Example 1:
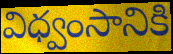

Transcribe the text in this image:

విధ్వంసానికి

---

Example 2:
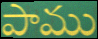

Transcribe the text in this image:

పాము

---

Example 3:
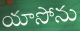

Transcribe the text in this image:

యాసోను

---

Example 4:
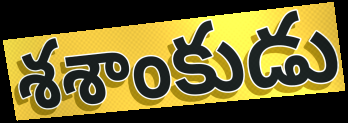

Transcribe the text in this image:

శశాంకుడు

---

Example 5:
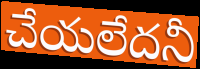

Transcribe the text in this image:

చేయలేదనీ